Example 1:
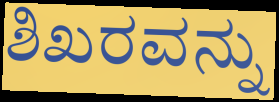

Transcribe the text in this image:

ಶಿಖರವನ್ನು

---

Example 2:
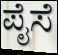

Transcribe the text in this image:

ಪೈಸೆ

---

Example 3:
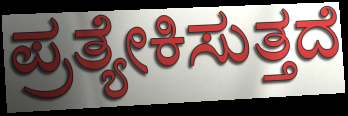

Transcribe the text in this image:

ಪ್ರತ್ಯೇಕಿಸುತ್ತದೆ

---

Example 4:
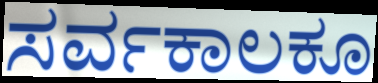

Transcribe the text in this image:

ಸರ್ವಕಾಲಕೂ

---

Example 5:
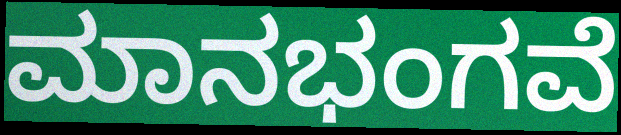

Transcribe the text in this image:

ಮಾನಭಂಗವೆ